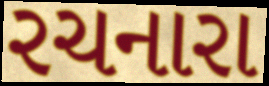
રચનારા